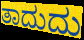
ತಾದುದು